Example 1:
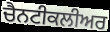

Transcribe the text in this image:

ਚੈਨਟੀਕਲੀਅਰ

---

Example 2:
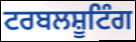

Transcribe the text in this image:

ਟਰਬਲਸ਼ੂਟਿੰਗ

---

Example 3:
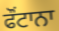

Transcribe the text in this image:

ਫੌਂਟਾਨਾ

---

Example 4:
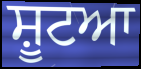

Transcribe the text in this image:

ਸ਼ੂਟਆ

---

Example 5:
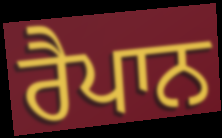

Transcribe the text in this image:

ਰੈਪਾਨ